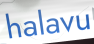
halavu